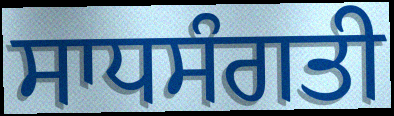
ਸਾਧਸੰਗਤੀ